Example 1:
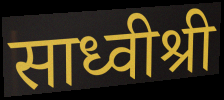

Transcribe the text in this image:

साध्वीश्री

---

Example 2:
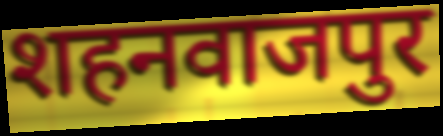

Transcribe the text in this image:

शहनवाजपुर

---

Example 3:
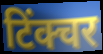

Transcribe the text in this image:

टिंक्चर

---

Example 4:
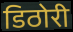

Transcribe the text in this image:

डिठोरी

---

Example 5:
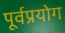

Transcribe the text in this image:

पूर्वप्रयोग